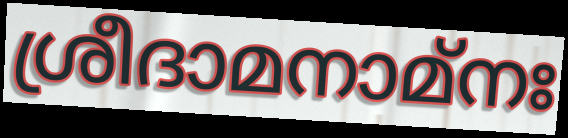
ശ്രീദാമനാമ്നഃ